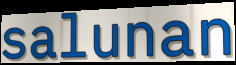
salunan